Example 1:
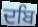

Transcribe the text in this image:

ਦਬਿ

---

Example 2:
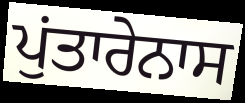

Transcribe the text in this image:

ਪੁਂਤਾਰੇਨਾਸ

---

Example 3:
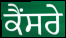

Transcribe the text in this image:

ਕੈਂਸਰੇ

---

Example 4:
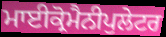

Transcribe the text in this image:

ਮਾਈਕ੍ਰੋਮੈਨੀਪੁਲੇਟਰ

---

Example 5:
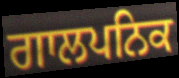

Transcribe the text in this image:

ਗਾਲਪਨਿਕ